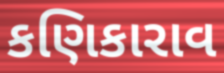
કણિકારાવ